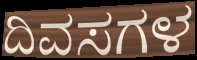
ದಿವಸಗಳ